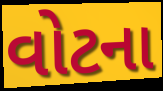
વોટના